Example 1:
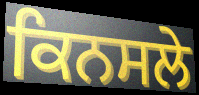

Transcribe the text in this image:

ਕਿਨਸਲੇ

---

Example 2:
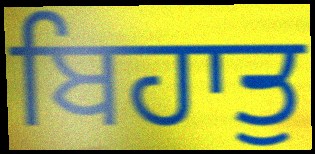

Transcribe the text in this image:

ਬਿਹਾਤੁ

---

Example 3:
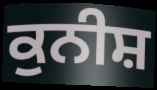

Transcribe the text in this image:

ਕੁਨੀਸ਼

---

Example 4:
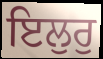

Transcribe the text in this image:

ਇਲੁਰੁ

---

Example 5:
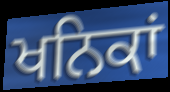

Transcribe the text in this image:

ਖਨਿਕਾਂ